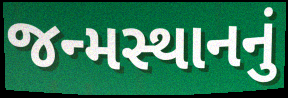
જન્મસ્થાનનું